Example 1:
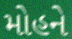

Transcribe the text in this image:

મોહને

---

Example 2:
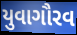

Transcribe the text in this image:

યુવાગૌરવ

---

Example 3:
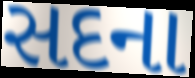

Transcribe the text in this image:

સદના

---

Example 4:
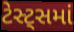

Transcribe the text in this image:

ટેસ્ટ્સમાં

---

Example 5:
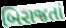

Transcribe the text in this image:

બિરાજતાં